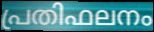
പ്രതിഫലനം